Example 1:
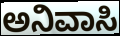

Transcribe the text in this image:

ಅನಿವಾಸಿ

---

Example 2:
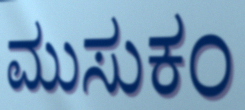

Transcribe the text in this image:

ಮುಸುಕಂ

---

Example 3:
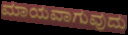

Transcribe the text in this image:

ಮಾಯವಾಗುವುದು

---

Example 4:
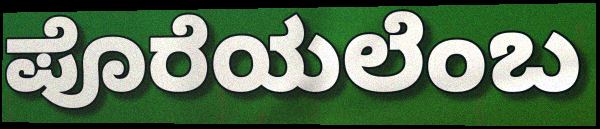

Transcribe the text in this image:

ಪೊರೆಯಲೆಂಬ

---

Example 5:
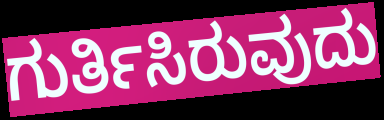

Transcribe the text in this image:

ಗುರ್ತಿಸಿರುವುದು